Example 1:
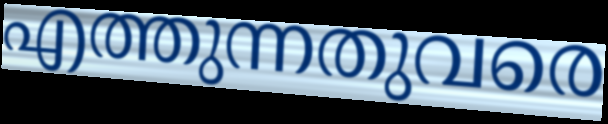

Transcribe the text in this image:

എത്തുന്നതുവരെ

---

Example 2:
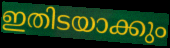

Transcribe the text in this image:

ഇതിടയാക്കും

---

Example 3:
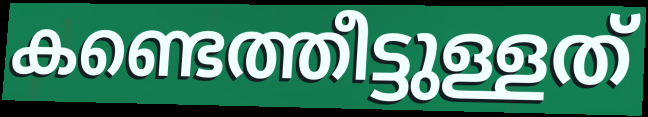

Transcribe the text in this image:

കണ്ടെത്തീട്ടുള്ളത്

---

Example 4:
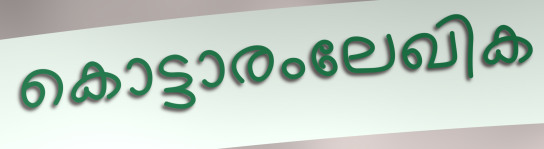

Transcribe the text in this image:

കൊട്ടാരംലേഖിക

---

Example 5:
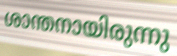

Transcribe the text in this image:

ശാന്തനായിരുന്നു